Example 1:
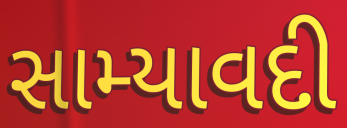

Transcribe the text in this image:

સામ્યાવદી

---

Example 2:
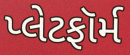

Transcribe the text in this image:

પ્લેટફૉર્મ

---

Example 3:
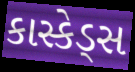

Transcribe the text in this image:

કાસ્કેડ્સ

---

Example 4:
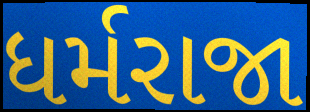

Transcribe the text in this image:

ધર્મરાજા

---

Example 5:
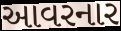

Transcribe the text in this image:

આવરનાર